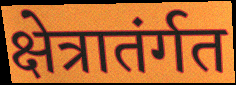
क्षेत्रातंर्गत